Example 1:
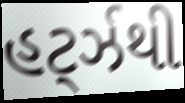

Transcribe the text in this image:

હર્ટ્ઝથી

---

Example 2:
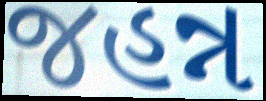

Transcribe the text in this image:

જહન્ન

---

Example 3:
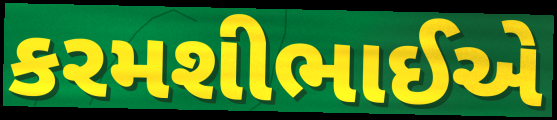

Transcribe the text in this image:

કરમશીભાઈએ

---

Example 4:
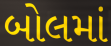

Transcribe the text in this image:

બોલમાં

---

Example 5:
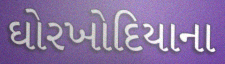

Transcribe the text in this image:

ઘોરખોદિયાના